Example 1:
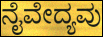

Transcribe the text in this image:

ನೈವೇದ್ಯವು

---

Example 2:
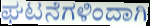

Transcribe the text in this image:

ಘಟನೆಗಳಿಂದಾಗಿ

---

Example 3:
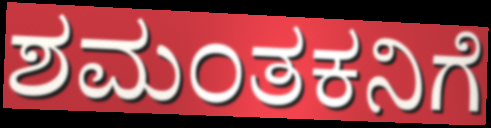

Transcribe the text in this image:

ಶಮಂತಕನಿಗೆ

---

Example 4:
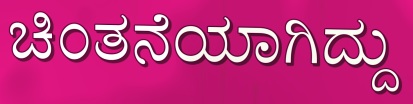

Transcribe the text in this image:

ಚಿಂತನೆಯಾಗಿದ್ದು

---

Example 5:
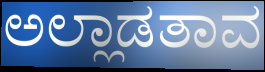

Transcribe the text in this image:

ಅಲ್ಲಾಡತಾವ